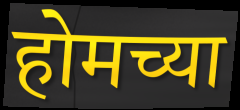
होमच्या